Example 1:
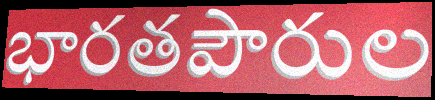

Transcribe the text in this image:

భారతపౌరుల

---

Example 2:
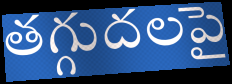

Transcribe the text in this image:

తగ్గుదలపై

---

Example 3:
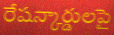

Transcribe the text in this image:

రేషన్కార్డులపై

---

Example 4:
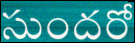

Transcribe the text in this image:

సుందరో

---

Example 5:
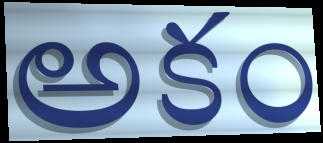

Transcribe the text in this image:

అకం